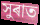
সুৰাত